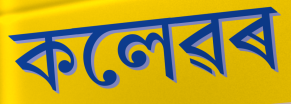
কলেৱৰ